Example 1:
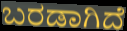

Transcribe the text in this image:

ಬರಡಾಗಿದೆ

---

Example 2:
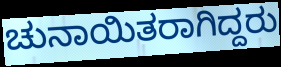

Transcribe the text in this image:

ಚುನಾಯಿತರಾಗಿದ್ದರು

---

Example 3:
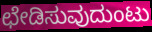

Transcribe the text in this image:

ಛೇಡಿಸುವುದುಂಟು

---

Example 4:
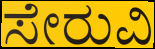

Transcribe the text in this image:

ಸೇರುವಿ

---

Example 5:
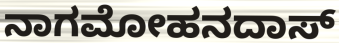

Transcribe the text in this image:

ನಾಗಮೋಹನದಾಸ್